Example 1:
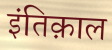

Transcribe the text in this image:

इंतिक़ाल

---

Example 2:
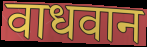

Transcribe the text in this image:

वाधवान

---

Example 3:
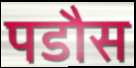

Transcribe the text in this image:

पडौस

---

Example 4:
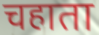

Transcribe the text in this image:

चहाता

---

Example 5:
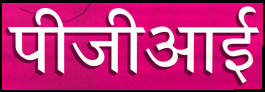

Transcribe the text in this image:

पीजीआई